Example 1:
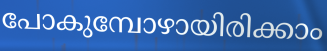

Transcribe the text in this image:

പോകുമ്പോഴായിരിക്കാം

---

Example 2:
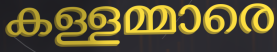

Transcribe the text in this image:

കള്ളമ്മാരെ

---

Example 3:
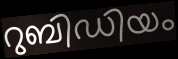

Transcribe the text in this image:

റുബിഡിയം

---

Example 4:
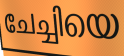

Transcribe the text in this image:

ചേച്ചിയെ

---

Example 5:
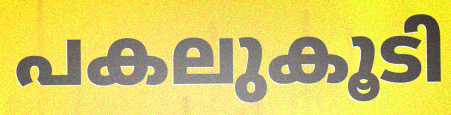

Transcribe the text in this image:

പകലുകൂടി